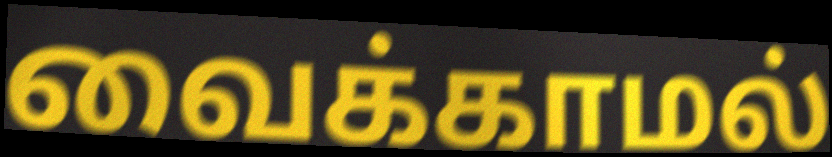
வைக்காமல்